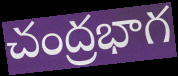
చంద్రభాగ